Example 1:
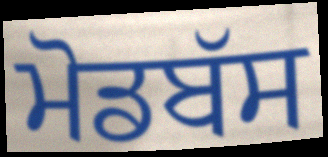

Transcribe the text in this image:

ਮੋਡਬੱਸ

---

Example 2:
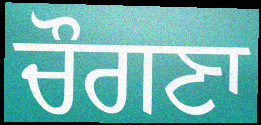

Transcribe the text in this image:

ਚੌਗਣਾ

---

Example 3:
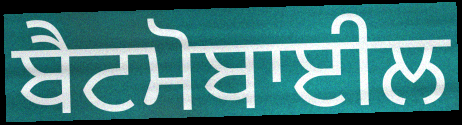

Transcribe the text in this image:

ਬੈਟਮੋਬਾਈਲ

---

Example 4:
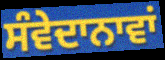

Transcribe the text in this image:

ਸੰਵੇਦਾਨਾਵਾਂ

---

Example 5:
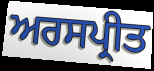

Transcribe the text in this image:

ਅਰਸਪ੍ਰੀਤ